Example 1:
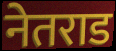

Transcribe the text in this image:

नेतराड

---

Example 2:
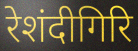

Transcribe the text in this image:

रेशंदीगिरि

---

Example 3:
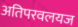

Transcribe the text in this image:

अतिपरवलयज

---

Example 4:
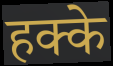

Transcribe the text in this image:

हक्के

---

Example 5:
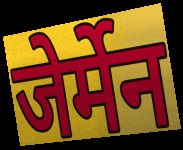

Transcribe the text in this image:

जेर्मेन